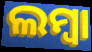
ଲମ୍ୱା